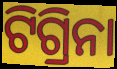
ଟିଗ୍ରିନା